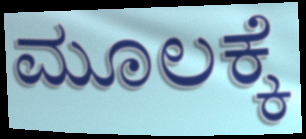
ಮೂಲಕ್ಕೆ